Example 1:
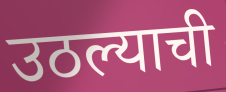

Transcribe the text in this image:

उठल्याची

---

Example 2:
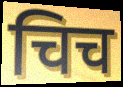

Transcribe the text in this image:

चिच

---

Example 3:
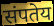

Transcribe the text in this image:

संपतेय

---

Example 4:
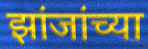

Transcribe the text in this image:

झांजांच्या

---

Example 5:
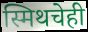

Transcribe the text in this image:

स्मिथचेही